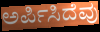
ಅರ್ಪಿಸಿದೆವು